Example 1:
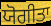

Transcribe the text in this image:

ਯੋਗੀਤਾ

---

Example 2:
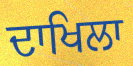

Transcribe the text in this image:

ਦਾਖਿਲਾ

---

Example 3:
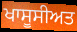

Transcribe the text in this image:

ਖਾਸੂਸੀਅਤ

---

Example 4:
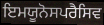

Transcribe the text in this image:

ਇਮਯੂਨੋਸਪਰੈਸਿਵ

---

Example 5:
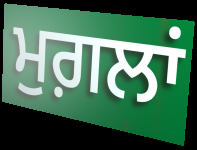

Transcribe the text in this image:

ਮੁਗ਼ਲਾਂ